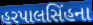
હરપાલસિંહના